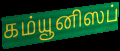
கம்யூனிஸப்